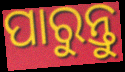
ପାରୁନ୍ତୁ